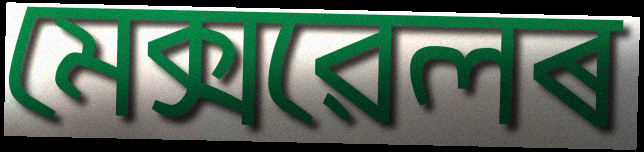
মেক্সৱেলৰ